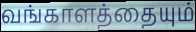
வங்காளத்தையும்